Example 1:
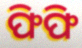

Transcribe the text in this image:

ଫିଫି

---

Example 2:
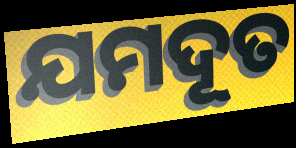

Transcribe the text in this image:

ଯମଦୂତ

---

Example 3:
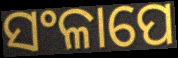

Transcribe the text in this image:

ସଂଳାପେ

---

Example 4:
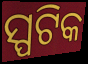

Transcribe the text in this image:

ସ୍ପଟିକ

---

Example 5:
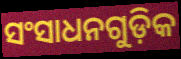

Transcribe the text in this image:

ସଂସାଧନଗୁଡ଼ିକ